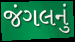
જંગલનું